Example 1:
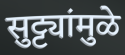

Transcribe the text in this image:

सुट्ट्यांमुळे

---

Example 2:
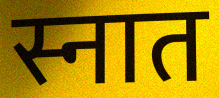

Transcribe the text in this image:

स्नात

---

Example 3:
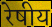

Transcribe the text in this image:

रेषीय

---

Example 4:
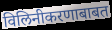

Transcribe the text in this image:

विलिनीकरणाबाबत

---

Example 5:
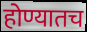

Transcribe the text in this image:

होण्यातच